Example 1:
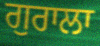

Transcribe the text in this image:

ਗੁਰਾਲਾ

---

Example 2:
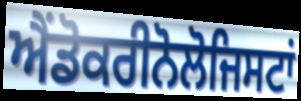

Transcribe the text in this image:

ਐਂਡੋਕਰੀਨੋਲੋਜਿਸਟਾਂ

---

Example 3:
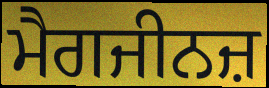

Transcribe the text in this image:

ਮੈਗਜੀਨਜ਼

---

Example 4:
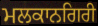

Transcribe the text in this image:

ਮਲਕਾਨਗਿਰੀ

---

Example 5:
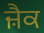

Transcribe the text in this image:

ਜ਼ੈਕ